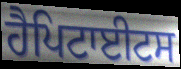
ਹੈਪਿਟਾਈਟਸ